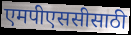
एमपीएससीसाठी